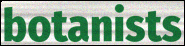
botanists